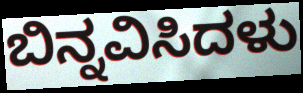
ಬಿನ್ನವಿಸಿದಳು